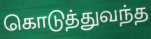
கொடுத்துவந்த